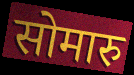
सोमारु